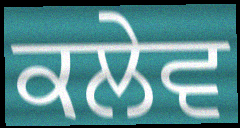
ਕਲੇਵ